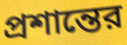
প্রশান্তের